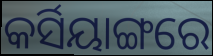
କର୍ସିୟାଙ୍ଗରେ